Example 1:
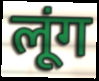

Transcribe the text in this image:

लूंग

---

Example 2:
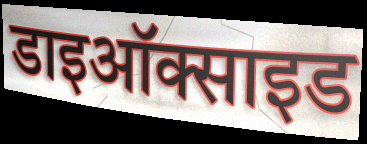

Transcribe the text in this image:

डाइऑक्साइड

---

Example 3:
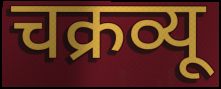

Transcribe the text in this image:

चक्रव्यू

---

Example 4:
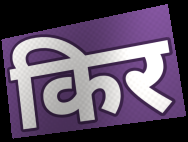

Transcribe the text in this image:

किर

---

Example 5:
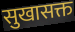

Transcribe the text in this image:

सुखासक्त